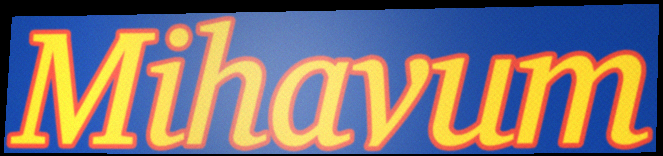
Mihavum